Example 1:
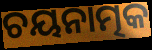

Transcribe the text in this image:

ଚୟନାତ୍ମକ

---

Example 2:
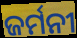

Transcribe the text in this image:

ଜର୍ମନୀ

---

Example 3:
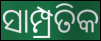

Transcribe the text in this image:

ସାମ୍ପ୍ରତିକ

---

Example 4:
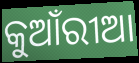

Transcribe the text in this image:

କୁଆଁରୀଆ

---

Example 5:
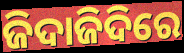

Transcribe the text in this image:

ଜିଦାଜିଦିରେ